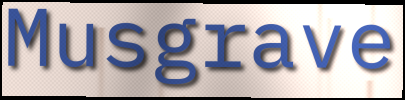
Musgrave